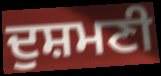
ਦੁਸ਼ਮਣੀ